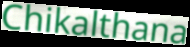
Chikalthana